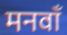
मनवाँ